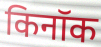
किनॉक